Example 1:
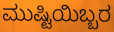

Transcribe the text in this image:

ಮುಷ್ಟಿಯಿಬ್ಬರ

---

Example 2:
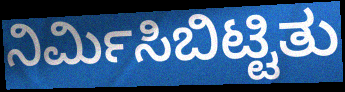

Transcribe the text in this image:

ನಿರ್ಮಿಸಿಬಿಟ್ಟಿತು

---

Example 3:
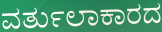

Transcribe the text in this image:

ವರ್ತುಲಾಕಾರದ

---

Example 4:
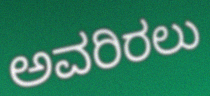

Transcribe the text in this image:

ಅವರಿರಲು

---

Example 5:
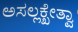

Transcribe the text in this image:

ಅಸಲ್ಲಕ್ಖೇತ್ವಾ